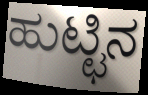
ಹುಟ್ಟಿನ